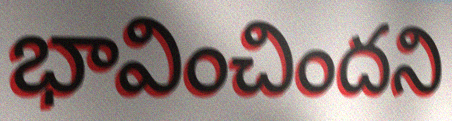
భావించిందని